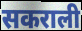
सकराली